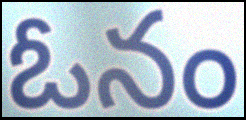
ఓనం